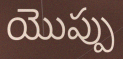
యొప్పు